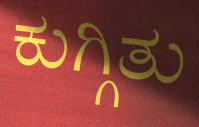
ಕುಗ್ಗಿತು